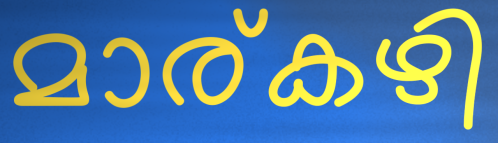
മാര്കഴി